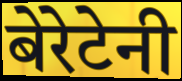
बेरेटेनी